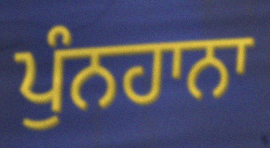
ਪੁੰਨਹਾਨਾ